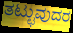
ತಟ್ಟುವುದರ